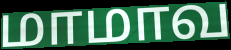
மாமாவ